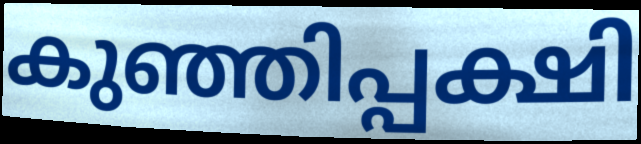
കുഞ്ഞിപ്പക്ഷി